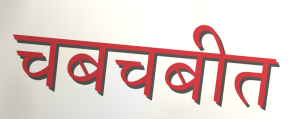
चबचबीत